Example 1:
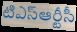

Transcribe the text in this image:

టిఎస్ఆర్టీసీ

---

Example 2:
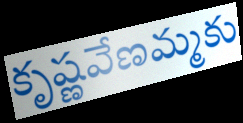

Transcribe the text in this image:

కృష్ణవేణమ్మకు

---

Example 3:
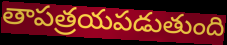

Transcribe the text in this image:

తాపత్రయపడుతుంది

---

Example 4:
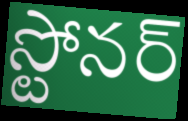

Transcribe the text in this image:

స్టోనర్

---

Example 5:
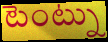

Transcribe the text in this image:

టెంట్ను